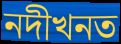
নদীখনত